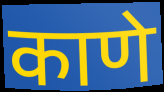
काणे